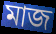
মাজ